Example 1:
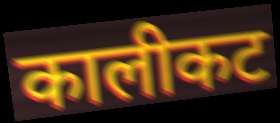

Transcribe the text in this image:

कालीकट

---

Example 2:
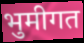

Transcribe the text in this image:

भुमीगत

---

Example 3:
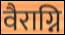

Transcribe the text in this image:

वैराग्नि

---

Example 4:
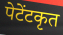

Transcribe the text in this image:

पेटेंटकृत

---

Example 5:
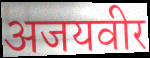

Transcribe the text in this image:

अजयवीर